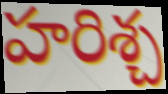
హరిశ్చ